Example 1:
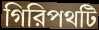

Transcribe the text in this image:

গিরিপথটি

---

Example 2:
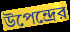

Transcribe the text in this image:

উপেন্দ্রের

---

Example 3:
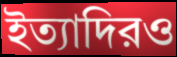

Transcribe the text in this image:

ইত্যাদিরও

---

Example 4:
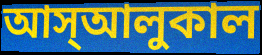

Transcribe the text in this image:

আস্আলুকাল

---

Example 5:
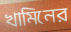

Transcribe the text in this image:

খামিনের